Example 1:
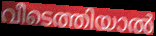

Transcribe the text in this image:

വീടെത്തിയാൽ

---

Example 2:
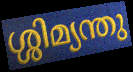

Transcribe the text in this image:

ശ്ശിമ്യന്തു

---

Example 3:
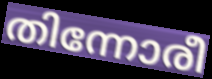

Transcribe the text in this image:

തിന്നോരീ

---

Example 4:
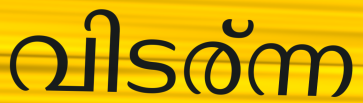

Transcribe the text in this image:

വിടര്ന്ന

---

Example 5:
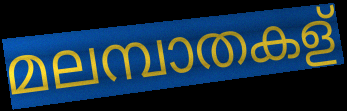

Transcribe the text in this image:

മലമ്പാതകള്